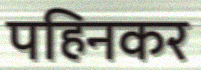
पहिनकर